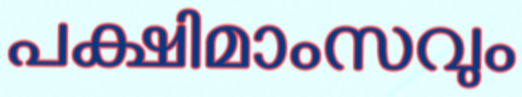
പക്ഷിമാംസവും